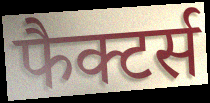
फैक्टर्स